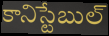
కానిస్టేబుల్